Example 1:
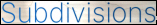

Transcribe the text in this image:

Subdivisions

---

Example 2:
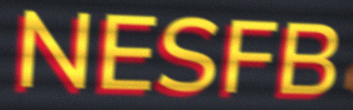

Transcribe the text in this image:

NESFB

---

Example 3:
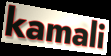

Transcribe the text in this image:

kamali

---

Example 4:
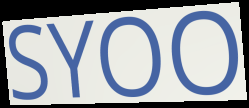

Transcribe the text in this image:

SYOO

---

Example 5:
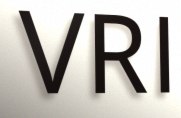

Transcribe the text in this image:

VRI